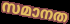
സമാനത